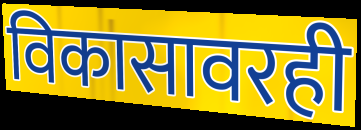
विकासावरही